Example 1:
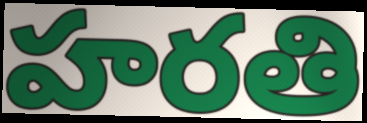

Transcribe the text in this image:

హరతి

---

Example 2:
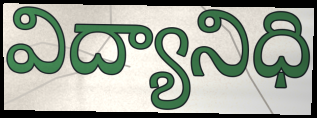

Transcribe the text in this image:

విద్యానిధి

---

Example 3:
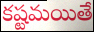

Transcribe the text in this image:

కష్టమయితే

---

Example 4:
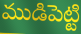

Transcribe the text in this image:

ముడిపెట్టి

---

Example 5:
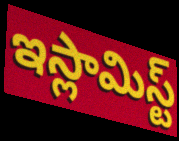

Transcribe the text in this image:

ఇస్లామిస్ట్